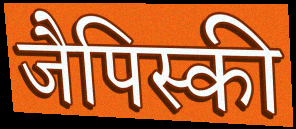
जैपिस्की